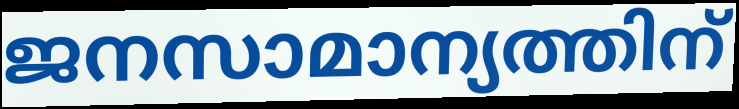
ജനസാമാന്യത്തിന്